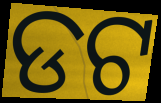
ଡଟ